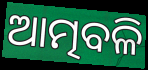
ଆତ୍ମବଳି